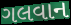
ગલવાન